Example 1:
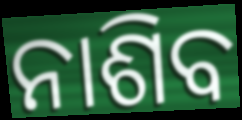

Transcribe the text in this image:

ନାଶିବ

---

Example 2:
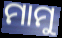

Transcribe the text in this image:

ମାମୁ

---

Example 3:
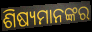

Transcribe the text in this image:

ଶିଷ୍ୟମାନଙ୍କର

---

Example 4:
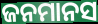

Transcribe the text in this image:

ଜନମାନସ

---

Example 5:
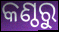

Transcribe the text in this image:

କଣ୍ଠରୁ